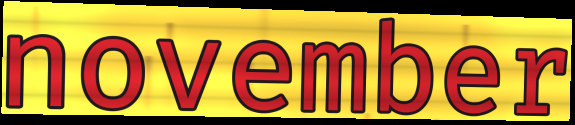
november